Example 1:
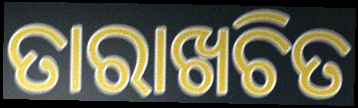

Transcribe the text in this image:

ତାରାଖଚିତ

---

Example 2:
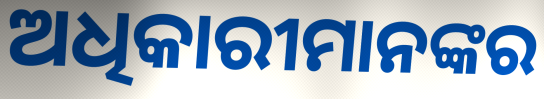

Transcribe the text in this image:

ଅଧିକାରୀମାନଙ୍କର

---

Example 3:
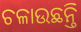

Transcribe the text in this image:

ଚଳାଉଛନ୍ତି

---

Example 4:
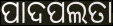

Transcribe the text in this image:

ପାଦପଲତା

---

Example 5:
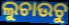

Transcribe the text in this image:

ଲୁଚାଉଚୁ